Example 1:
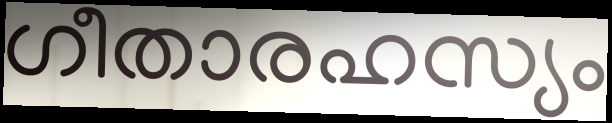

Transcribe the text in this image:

ഗീതാരഹസ്യം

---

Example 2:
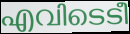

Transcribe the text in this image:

എവിടെടീ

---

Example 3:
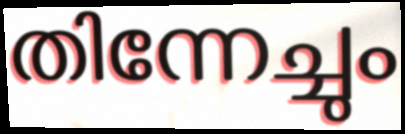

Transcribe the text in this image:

തിന്നേച്ചും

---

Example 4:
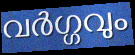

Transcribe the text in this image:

വർഗ്ഗവും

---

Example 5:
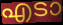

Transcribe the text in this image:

എടാ